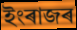
ইংৰাজৰ